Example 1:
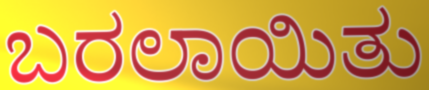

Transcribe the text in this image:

ಬರಲಾಯಿತು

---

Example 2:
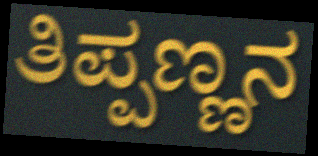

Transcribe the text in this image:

ತಿಪ್ಪಣ್ಣನ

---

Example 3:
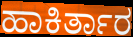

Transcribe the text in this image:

ಹಾಕಿರ್ತಾರ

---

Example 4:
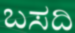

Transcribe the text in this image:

ಬಸದಿ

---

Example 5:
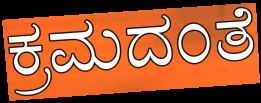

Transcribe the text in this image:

ಕ್ರಮದಂತೆ